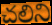
చలిని